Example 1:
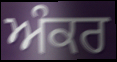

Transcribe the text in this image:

ਅੰਕਰ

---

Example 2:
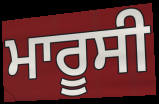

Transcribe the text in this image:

ਮਾਰੂਸੀ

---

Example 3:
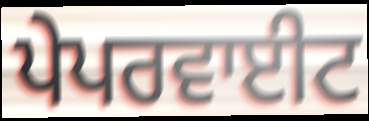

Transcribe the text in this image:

ਪੇਪਰਵਾਈਟ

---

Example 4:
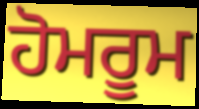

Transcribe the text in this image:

ਹੋਮਰੂਮ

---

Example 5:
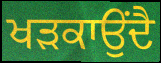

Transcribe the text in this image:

ਖੜਕਾਉਂਦੈ